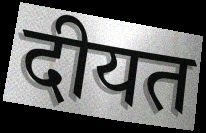
दीयत